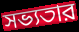
সভ্যতার